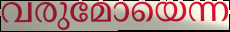
വരുമോയെന്ന